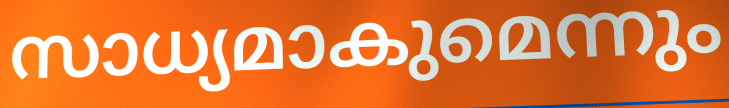
സാധ്യമാകുമെന്നും